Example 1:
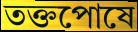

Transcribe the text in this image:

তক্তপোষে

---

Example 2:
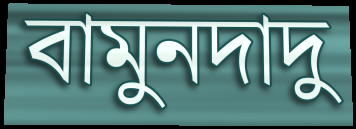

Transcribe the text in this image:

বামুনদাদু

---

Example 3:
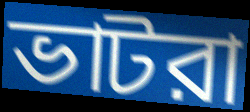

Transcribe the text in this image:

ভাটরা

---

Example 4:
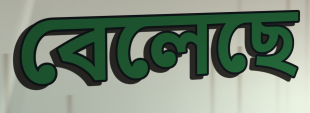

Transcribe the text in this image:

বেলেছে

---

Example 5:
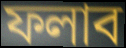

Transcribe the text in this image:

ফলাব